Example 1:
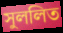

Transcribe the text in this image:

সুললিত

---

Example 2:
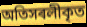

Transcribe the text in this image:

অতিসৰলীকৃত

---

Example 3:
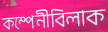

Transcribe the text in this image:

কম্পেনীবিলাক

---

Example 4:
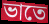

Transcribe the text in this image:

ভাতে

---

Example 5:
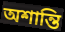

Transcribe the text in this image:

অশান্তি